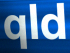
qld